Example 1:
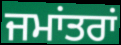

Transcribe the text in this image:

ਜਮਾਂਤਰਾਂ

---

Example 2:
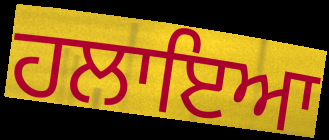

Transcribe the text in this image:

ਹਲਾਇਆ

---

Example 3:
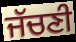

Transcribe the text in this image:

ਜੱਚਣੀ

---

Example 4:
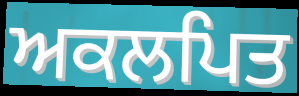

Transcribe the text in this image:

ਅਕਲਪਿਤ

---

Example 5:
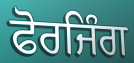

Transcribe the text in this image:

ਫੋਰਜਿੰਗ